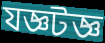
যজ্ঞটজ্ঞ